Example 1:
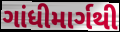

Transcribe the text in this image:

ગાંધીમાર્ગથી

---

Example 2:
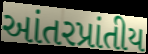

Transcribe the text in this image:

આંતરપ્રાંતીય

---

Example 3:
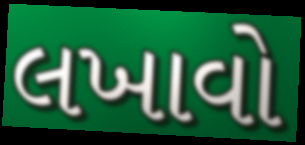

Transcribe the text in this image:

લખાવો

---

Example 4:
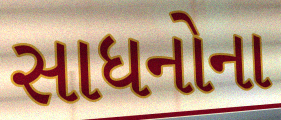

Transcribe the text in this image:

સાધનોના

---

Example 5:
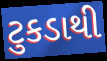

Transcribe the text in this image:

ટુકડાથી